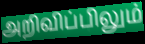
அறிவிப்பிலும்